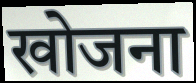
खोजना